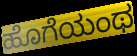
ಹೊಗೆಯಂಥ